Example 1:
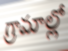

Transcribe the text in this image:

గ్రామాల్లో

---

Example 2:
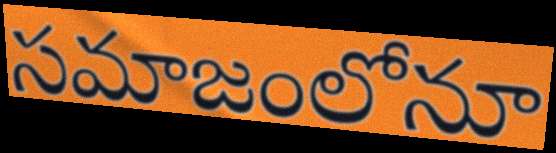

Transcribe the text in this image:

సమాజంలోనూ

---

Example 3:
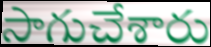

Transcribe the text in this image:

సాగుచేశారు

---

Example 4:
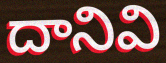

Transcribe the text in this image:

దానివి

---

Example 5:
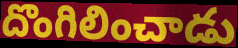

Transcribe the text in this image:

దొంగిలించాడు